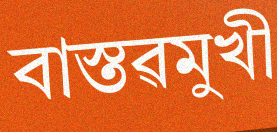
বাস্তৱমুখী